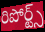
రిపోర్ట్స్